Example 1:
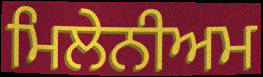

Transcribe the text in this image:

ਮਿਲੇਨੀਅਮ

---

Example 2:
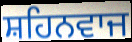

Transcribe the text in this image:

ਸ਼ਹਿਨਵਾਜ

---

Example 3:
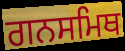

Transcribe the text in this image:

ਗਨਸਮਿਥ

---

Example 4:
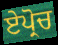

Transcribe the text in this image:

ਏਪ੍ਰੋਚ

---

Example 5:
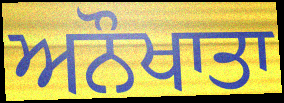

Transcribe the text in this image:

ਅਨੌਖਾਤਾ